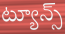
ట్యూన్స్